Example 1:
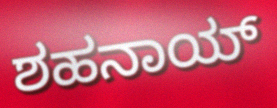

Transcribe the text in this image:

ಶಹನಾಯ್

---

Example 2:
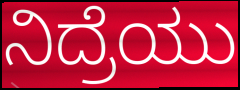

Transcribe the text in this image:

ನಿದ್ರೆಯು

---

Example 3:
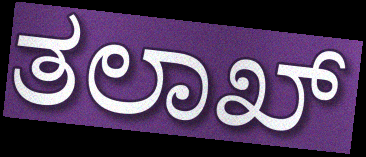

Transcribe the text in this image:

ತಲಾಖ್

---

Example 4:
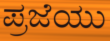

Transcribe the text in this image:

ಪ್ರಜೆಯು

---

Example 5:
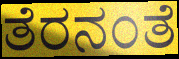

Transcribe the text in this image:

ತೆರನಂತೆ